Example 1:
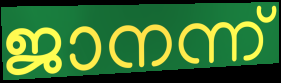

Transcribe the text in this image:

ജാനന്ന്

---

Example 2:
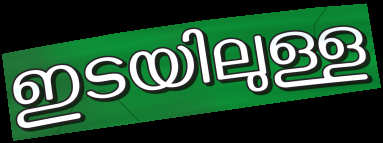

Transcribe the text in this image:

ഇടയിലുള്ള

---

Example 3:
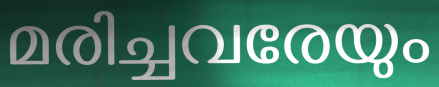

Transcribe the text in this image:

മരിച്ചവരേയും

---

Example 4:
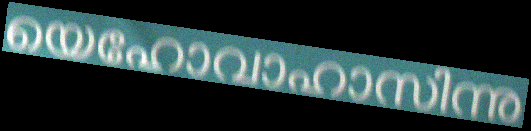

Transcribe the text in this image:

യെഹോവാഹാസിന്നു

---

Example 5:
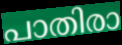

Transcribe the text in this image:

പാതിരാ